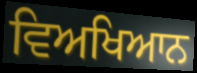
ਵਿਅਖਿਆਨ